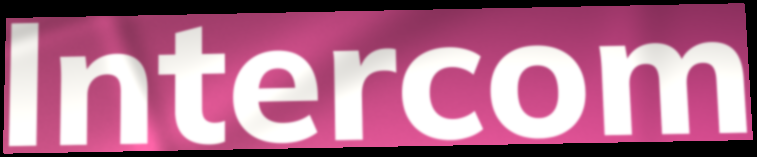
Intercom